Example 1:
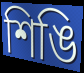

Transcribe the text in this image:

শিঙি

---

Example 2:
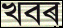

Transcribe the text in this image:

খবৰ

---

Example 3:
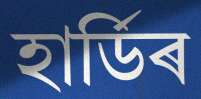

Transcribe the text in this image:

হাৰ্ডিৰ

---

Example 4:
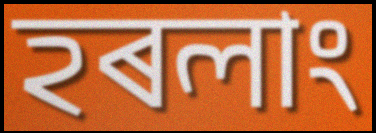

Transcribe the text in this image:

হৰলাং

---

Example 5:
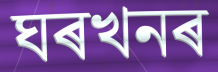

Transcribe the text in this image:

ঘৰখনৰ